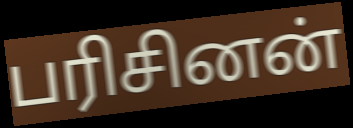
பரிசினன்